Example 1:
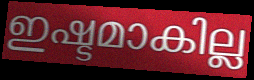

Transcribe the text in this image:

ഇഷ്ടമാകില്ല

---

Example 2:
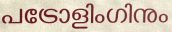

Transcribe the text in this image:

പട്രോളിംഗിനും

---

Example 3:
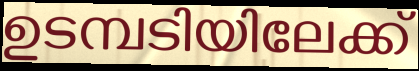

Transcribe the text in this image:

ഉടമ്പടിയിലേക്ക്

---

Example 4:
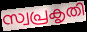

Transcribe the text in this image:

സ്വപ്രകൃതി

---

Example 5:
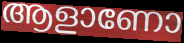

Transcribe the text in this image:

ആളാണോ